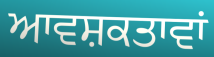
ਆਵਸ਼ਕਤਾਵਾਂ